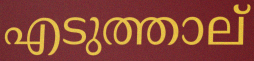
എടുത്താല്